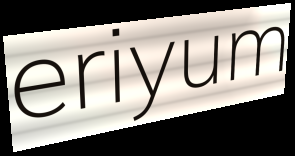
eriyum